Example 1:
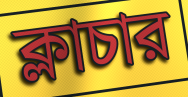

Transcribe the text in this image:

ক্লাচার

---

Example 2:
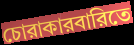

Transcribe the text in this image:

চোরাকারবারিতে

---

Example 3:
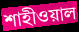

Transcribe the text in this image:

শাহীওয়াল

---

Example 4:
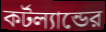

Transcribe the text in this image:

কর্টল্যান্ডের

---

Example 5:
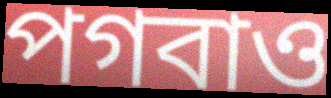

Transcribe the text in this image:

পগবাও